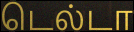
டெல்டா